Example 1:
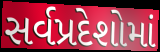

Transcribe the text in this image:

સર્વપ્રદેશોમાં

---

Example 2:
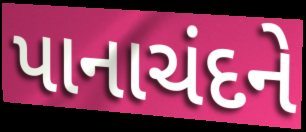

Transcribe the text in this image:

પાનાચંદને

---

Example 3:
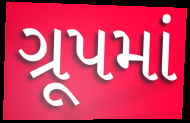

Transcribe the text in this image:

ગ્રૂપમાં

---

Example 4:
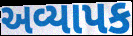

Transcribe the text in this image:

અવ્યાપક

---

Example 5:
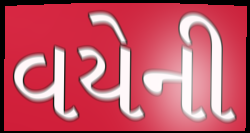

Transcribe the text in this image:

વયેની